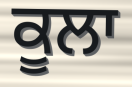
ਕੂਲਾ